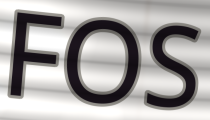
FOS